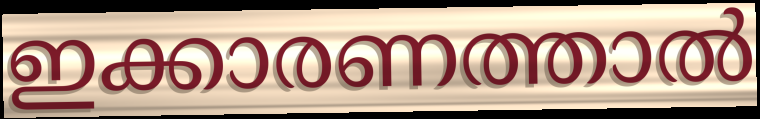
ഇക്കാരണത്താൽ